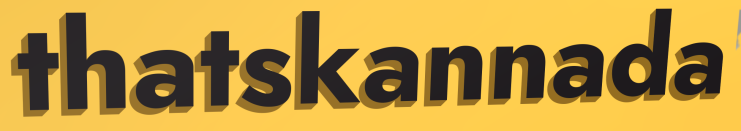
thatskannada